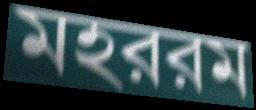
মহররম